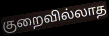
குறைவில்லாத